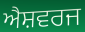
ਐਸ਼ਵਰਜ